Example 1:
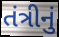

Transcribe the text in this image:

તંત્રીનું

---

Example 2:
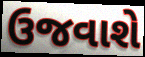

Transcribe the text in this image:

ઉજવાશે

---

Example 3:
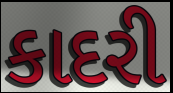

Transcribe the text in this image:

કાદરી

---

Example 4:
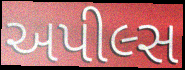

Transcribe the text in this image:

અપીલ્સ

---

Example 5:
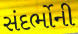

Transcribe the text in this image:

સંદર્ભોની